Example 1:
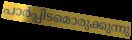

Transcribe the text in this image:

പാർപ്പിടമൊരുക്കുന്നു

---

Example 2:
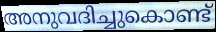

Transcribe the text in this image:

അനുവദിച്ചുകൊണ്ട്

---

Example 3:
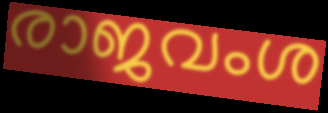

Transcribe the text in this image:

രാജവംശ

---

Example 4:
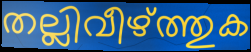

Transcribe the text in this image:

തല്ലിവീഴ്ത്തുക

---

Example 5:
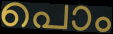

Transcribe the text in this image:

പൊം